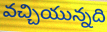
వచ్చియున్నది